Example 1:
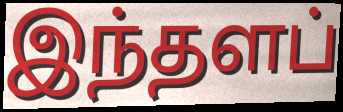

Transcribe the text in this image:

இந்தளப்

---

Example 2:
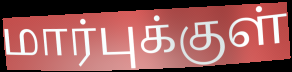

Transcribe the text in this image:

மார்புக்குள்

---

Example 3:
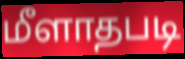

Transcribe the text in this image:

மீளாதபடி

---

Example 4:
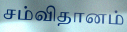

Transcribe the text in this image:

சம்விதானம்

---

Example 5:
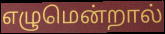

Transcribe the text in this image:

எழுமென்றால்